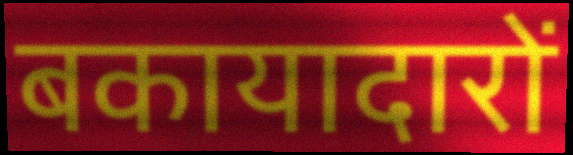
बकायादारों